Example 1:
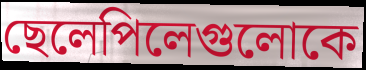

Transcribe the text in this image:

ছেলেপিলেগুলোকে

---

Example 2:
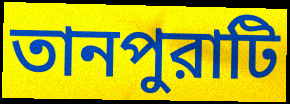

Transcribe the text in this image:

তানপুরাটি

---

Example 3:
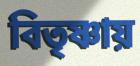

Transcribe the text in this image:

বিতৃষ্ণায়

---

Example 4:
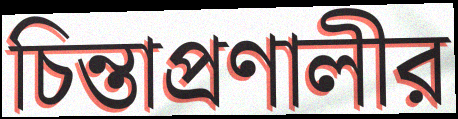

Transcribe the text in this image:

চিন্তাপ্রণালীর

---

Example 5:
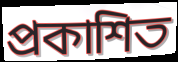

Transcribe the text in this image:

প্রকাশিত